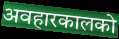
अवहारकालको